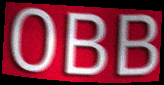
OBB